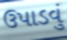
ઉપાડવું